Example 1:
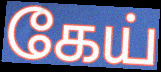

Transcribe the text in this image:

கேய்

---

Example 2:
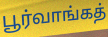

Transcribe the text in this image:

பூர்வாங்கத்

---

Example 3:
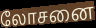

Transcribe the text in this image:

லோசனை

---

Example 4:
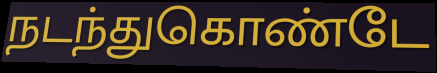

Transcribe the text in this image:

நடந்துகொண்டே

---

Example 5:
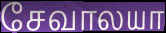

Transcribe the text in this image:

சேவாலயா